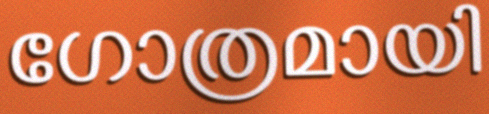
ഗോത്രമായി